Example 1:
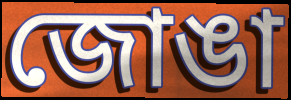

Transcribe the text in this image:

জোঙা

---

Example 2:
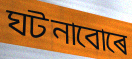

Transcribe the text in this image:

ঘটনাবোৰে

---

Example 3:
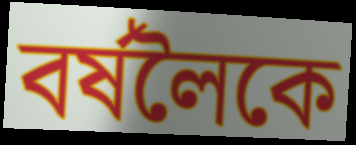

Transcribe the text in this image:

বৰ্ষলৈকে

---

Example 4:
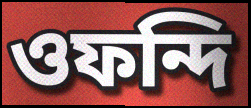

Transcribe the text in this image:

ওফন্দি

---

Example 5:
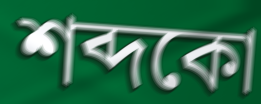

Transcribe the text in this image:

শব্দকো